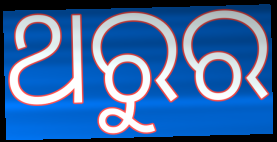
ଥରୁର